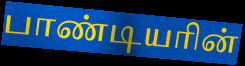
பாண்டியரின்